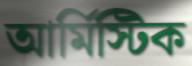
আর্মিস্টিক